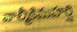
వాల్మీకిమహర్షి